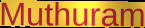
Muthuram